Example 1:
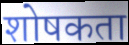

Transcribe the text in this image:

शोषकता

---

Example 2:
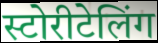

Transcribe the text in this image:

स्टोरीटेलिंग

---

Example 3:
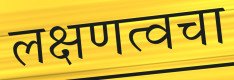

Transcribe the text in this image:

लक्षणत्वचा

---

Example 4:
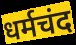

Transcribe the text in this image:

धर्मचंद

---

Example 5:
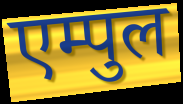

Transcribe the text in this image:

एम्पुल